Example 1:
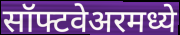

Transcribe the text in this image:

सॉफ्टवेअरमध्ये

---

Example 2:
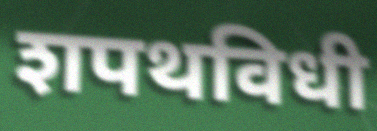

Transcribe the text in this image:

शपथविधी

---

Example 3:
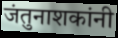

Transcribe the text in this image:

जंतुनाशकांनी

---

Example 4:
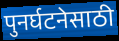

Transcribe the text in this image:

पुनर्घटनेसाठी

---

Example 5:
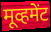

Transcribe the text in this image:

मूव्हमेंट